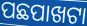
ପଛପାଖଟା